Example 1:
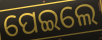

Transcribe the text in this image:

ପେଇଲେ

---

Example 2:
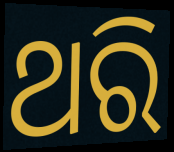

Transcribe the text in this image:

ଥରି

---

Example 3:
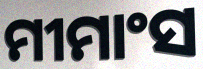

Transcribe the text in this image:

ମୀମାଂସ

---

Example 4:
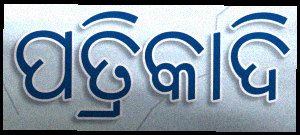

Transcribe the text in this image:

ପତ୍ରିକାଦି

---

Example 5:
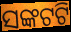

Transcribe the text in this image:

ସଙ୍କଟଟି